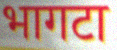
भागटा